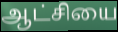
ஆட்சியை